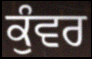
ਕੁੰਵਰ